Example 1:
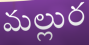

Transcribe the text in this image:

మల్లుర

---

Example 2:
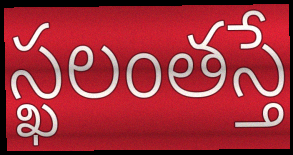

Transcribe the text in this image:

స్ఖలంతస్తే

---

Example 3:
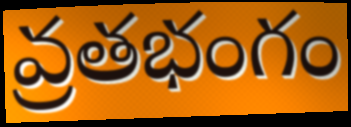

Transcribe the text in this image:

వ్రతభంగం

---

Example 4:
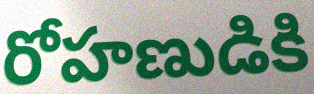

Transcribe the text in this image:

రోహణుడికి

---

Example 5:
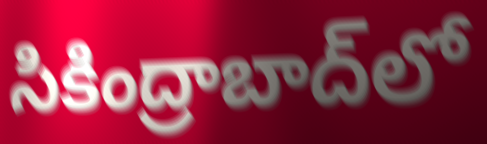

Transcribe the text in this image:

సికింద్రాబాద్‌లో